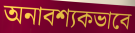
অনাবশ্যকভাবে